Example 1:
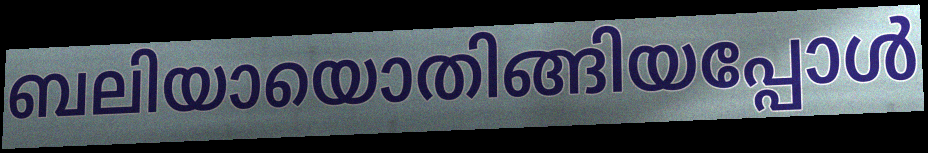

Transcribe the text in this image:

ബലിയായൊതിങ്ങിയപ്പോൾ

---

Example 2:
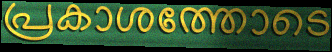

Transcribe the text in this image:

പ്രകാശത്തോടെ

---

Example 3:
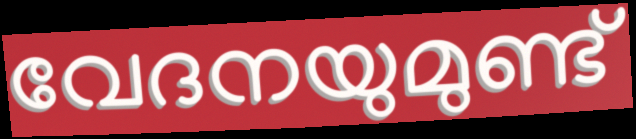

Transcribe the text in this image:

വേദനയുമുണ്ട്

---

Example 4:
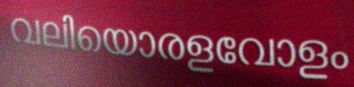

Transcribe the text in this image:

വലിയൊരളവോളം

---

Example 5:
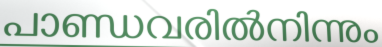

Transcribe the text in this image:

പാണ്ഡവരിൽനിന്നും